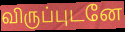
விருப்புடனே